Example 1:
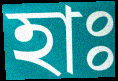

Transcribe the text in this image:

হাঃ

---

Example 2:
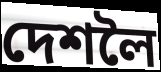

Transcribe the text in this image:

দেশলৈ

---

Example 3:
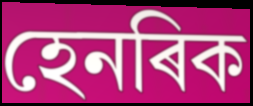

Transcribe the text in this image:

হেনৰিক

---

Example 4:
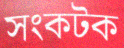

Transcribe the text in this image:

সংকটক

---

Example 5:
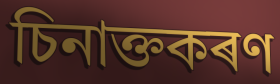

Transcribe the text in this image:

চিনাক্তকৰণ